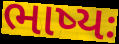
ભાષ્યઃ